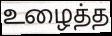
உழைத்த